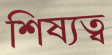
শিষ্যত্ব